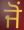
ਜੋਂ